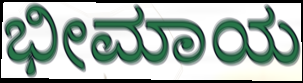
ಭೀಮಾಯ